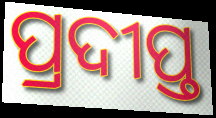
ପ୍ରଦୀପ୍ତ